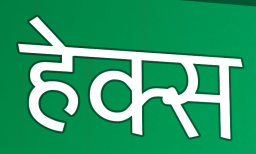
हेक्स